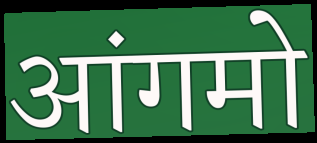
आंगमो